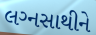
લગ્‍નસાથીને